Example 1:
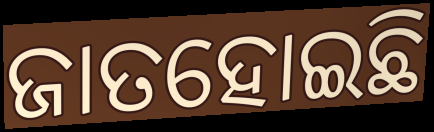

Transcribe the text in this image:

ଜାତହୋଇଛି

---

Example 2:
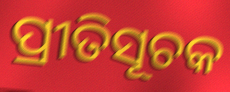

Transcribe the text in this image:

ପ୍ରୀତିସୂଚକ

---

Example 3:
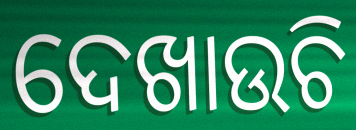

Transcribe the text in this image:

ଦେଖାଉଚି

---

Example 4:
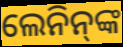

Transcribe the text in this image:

ଲେନିନ୍‌ଙ୍କ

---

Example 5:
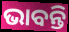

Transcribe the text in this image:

ଭାବନ୍ତି